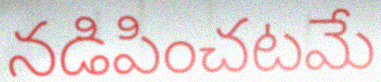
నడిపించటమే